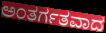
ಅಂತರ್ಗತವಾದ